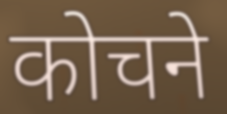
कोचने